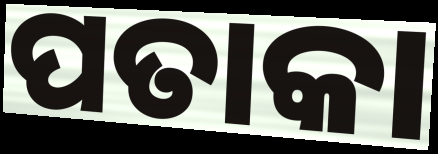
ପତାକା